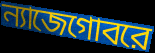
ন্যাজেগোবরে